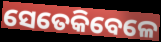
ସେତେକିବେଳେ